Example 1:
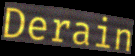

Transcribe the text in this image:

Derain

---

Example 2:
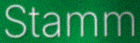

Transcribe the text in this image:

Stamm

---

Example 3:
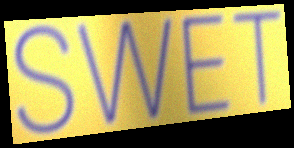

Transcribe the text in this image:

SWET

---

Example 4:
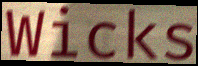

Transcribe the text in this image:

Wicks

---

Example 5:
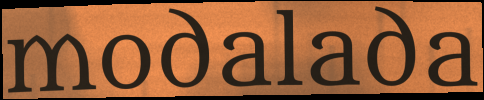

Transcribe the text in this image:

modalada